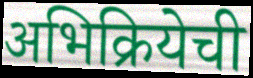
अभिक्रियेची